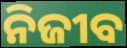
ନିଜୀବ